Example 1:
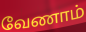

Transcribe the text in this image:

வேணாம்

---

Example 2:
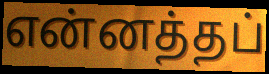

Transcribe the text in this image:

என்னத்தப்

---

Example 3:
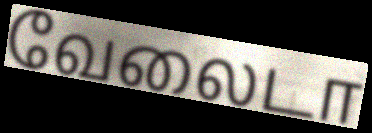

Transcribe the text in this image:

வேலைடா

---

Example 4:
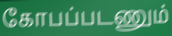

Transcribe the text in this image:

கோபப்படணும்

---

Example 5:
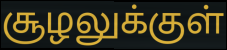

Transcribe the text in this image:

சூழலுக்குள்